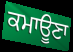
ਕਮਾਊਣਾ